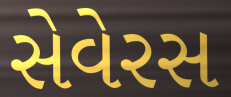
સેવેરસ